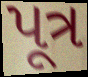
પૂત્ર